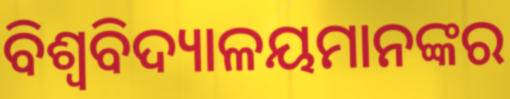
ବିଶ୍ଵବିଦ୍ୟାଳୟମାନଙ୍କର